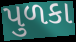
પુળકા